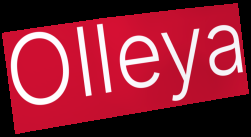
Olleya